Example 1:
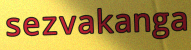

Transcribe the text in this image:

sezvakanga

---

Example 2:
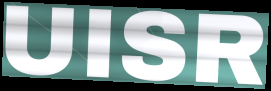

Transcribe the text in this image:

UISR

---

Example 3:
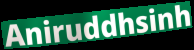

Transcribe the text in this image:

Aniruddhsinh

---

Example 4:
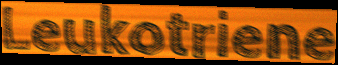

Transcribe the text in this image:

Leukotriene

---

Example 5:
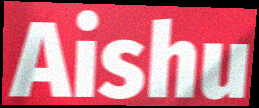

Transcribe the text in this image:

Aishu